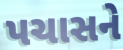
પચાસને